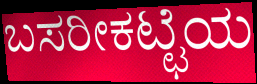
ಬಸರೀಕಟ್ಟೆಯ